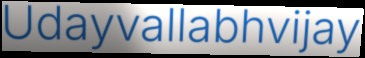
Udayvallabhvijay